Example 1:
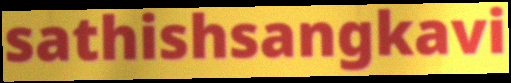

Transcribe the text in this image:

sathishsangkavi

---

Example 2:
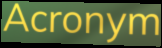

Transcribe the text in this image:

Acronym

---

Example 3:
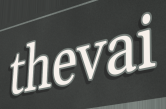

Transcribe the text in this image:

thevai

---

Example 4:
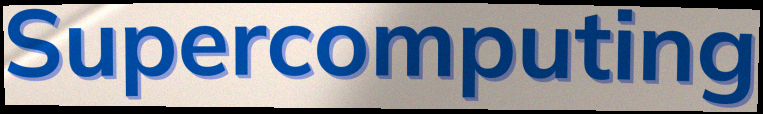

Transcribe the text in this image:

Supercomputing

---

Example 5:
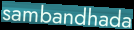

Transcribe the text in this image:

sambandhada